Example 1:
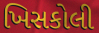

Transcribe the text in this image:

ખિસકોલી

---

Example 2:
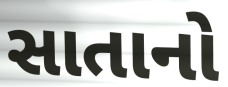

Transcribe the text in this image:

સાતાનો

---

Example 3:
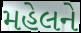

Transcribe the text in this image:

મહેલને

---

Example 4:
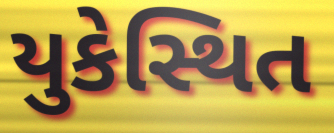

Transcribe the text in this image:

યુકેસ્થિત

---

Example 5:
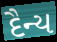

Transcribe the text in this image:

દૈન્ય